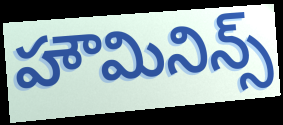
హౌమినిన్స్